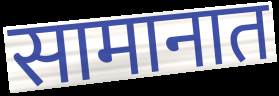
सामानात